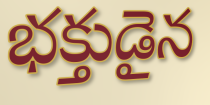
భక్తుడైన